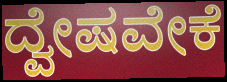
ದ್ವೇಷವೇಕೆ